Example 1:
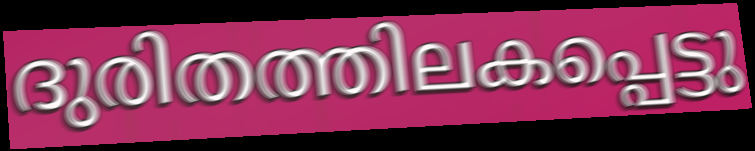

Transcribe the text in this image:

ദുരിതത്തിലകപ്പെട്ടു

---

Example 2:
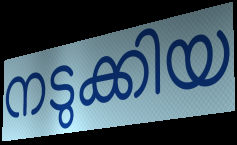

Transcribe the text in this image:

നടുക്കിയ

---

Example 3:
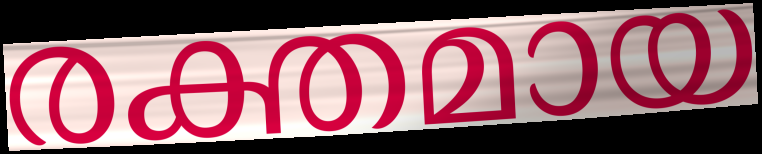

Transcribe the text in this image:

രക്തമായ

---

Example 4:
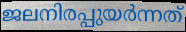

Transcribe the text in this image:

ജലനിരപ്പുയർന്നത്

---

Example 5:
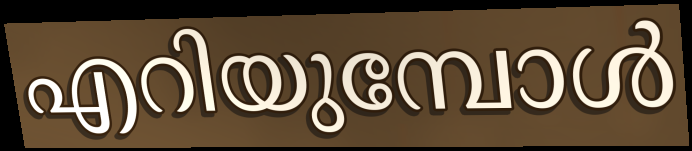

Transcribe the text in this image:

എറിയുമ്പോൾ